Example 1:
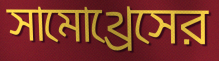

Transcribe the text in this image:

সামোথ্রেসের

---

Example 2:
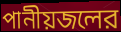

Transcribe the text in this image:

পানীয়জলের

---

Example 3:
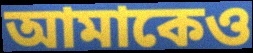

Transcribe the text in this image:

আমাকেও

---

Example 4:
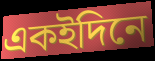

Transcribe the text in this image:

একইদিনে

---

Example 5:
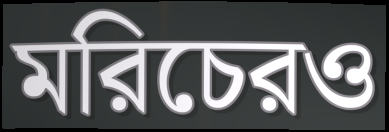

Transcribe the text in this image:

মরিচেরও